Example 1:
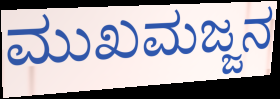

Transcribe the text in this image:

ಮುಖಮಜ್ಜನ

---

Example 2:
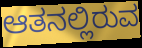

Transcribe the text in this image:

ಆತನಲ್ಲಿರುವ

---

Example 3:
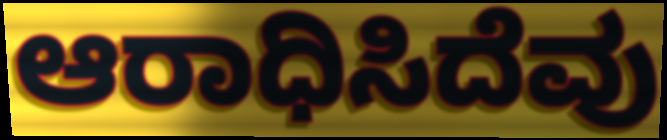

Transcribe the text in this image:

ಆರಾಧಿಸಿದೆವು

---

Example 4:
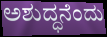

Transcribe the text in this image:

ಅಶುದ್ಧನೆಂದು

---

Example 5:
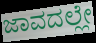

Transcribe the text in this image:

ಜಾವದಲ್ಲೇ